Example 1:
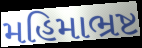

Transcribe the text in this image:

મહિમાભ્રષ્ટ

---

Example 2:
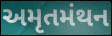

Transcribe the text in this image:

અમૃતમંથન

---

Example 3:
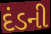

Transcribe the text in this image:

દંડની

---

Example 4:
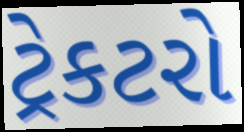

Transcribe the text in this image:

ટ્રેકટરો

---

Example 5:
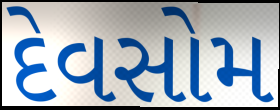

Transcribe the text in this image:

દેવસોમ